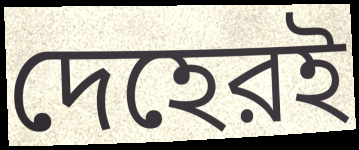
দেহেরই